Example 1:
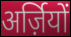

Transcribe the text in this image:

अर्ज़ियों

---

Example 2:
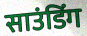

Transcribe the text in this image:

साउंडिंग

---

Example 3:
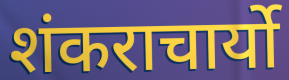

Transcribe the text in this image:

शंकराचार्यो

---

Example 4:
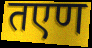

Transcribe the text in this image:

तएण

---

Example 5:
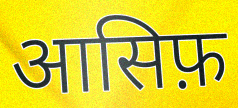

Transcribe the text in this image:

आसिफ़